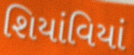
શિયાંવિયાં